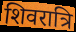
शिवरात्रि